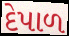
દેપાળ